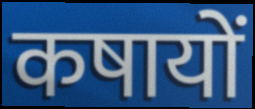
कषायों